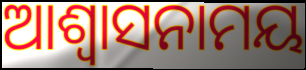
ଆଶ୍ୱାସନାମୟ